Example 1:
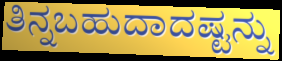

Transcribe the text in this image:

ತಿನ್ನಬಹುದಾದಷ್ಟನ್ನು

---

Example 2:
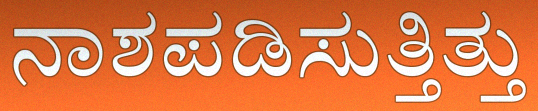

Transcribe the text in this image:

ನಾಶಪಡಿಸುತ್ತಿತ್ತು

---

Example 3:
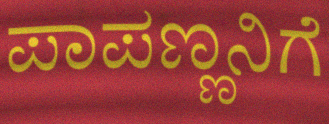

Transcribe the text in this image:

ಪಾಪಣ್ಣನಿಗೆ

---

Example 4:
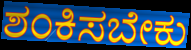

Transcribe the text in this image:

ಶಂಕಿಸಬೇಕು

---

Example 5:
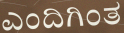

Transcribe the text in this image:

ಎಂದಿಗಿಂತ